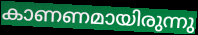
കാണണമായിരുന്നു